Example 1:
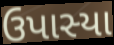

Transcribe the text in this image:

ઉપાસ્યા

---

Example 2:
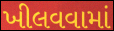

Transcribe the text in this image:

ખીલવવામાં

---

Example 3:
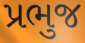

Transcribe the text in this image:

પ્રભુજ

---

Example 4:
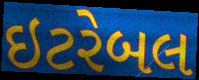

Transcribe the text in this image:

ઇટરેબલ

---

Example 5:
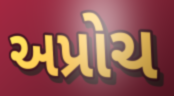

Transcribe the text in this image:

અપ્રોચ